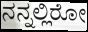
ನನ್ನಲ್ಲಿರೋ